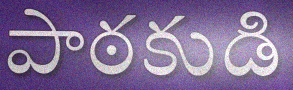
పాఠకుడి